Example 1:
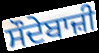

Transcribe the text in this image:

ਸੌਦੇਬਾਜ਼ੀ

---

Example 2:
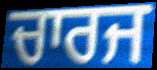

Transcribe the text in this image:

ਚਾਰਜ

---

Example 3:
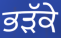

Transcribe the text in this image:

ਭੜੱਕੇ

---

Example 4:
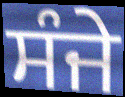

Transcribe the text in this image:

ਸੰਜੇ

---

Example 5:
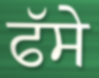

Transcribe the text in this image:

ਫੱਸੇ